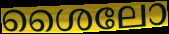
ശൈലോ